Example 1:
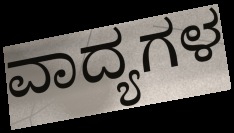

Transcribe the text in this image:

ವಾದ್ಯಗಳ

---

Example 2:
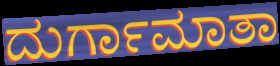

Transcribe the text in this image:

ದುರ್ಗಾಮಾತಾ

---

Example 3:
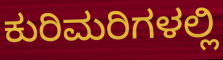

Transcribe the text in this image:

ಕುರಿಮರಿಗಳಲ್ಲಿ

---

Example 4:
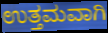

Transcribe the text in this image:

ಉತ್ತಮವಾಗಿ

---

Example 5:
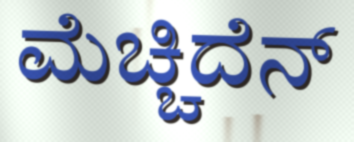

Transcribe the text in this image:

ಮೆಚ್ಚಿದೆನ್